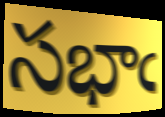
సభాఁ